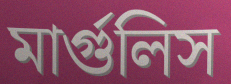
মার্গুলিস